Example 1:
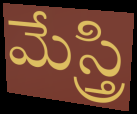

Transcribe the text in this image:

మేస్త్రి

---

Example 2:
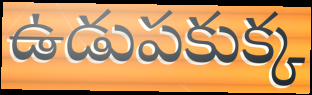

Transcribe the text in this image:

ఉడుపకుక్క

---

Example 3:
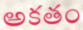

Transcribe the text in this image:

అకతం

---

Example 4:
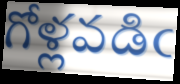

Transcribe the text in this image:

గోళ్లవడిఁ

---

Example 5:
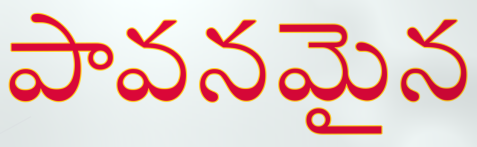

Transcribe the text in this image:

పావనమైన